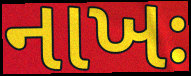
નાખઃ